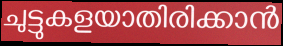
ചുട്ടുകളയാതിരിക്കാൻ